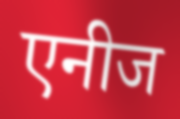
एनीज